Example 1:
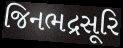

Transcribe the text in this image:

જિનભદ્રસૂરિ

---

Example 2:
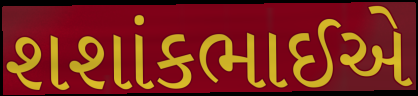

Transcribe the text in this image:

શશાંકભાઈએ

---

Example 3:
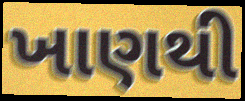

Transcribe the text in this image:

ખાણથી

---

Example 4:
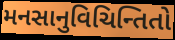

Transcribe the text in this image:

મનસાનુવિચિન્તિતો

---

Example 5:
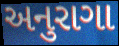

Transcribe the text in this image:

અનુરાગા